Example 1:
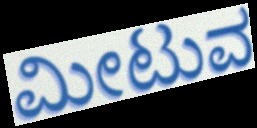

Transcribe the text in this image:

ಮೀಟುವ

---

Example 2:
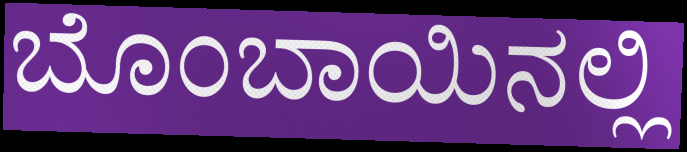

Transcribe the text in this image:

ಬೊಂಬಾಯಿನಲ್ಲಿ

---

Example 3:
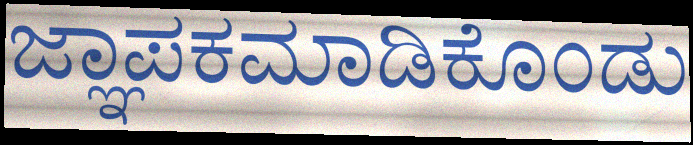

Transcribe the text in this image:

ಜ್ಞಾಪಕಮಾಡಿಕೊಂಡು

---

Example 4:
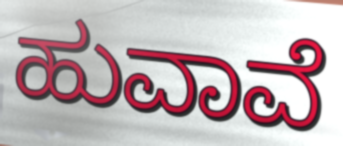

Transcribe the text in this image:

ಹುವಾವೆ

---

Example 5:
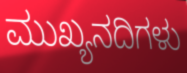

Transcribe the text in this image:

ಮುಖ್ಯನದಿಗಳು